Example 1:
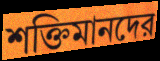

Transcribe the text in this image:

শক্তিমানদের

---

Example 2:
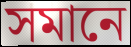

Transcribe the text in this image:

সমানে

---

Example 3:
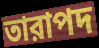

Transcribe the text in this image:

তারাপদ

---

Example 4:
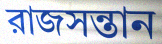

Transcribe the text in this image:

রাজসন্তান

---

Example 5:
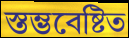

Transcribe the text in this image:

স্তম্ভবেষ্টিত